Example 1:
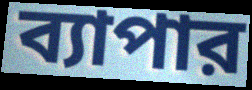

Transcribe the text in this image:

ব্যাপার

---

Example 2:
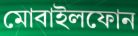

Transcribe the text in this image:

মোবাইলফোন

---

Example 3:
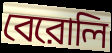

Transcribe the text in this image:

বেরোলি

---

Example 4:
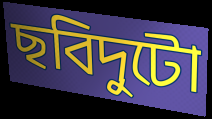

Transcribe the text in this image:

ছবিদুটো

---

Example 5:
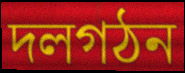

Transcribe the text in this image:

দলগঠন